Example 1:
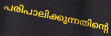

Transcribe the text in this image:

പരിപാലിക്കുന്നതിന്റെ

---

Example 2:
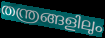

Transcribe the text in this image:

തന്ത്രങ്ങളിലും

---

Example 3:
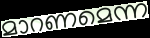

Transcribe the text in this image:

മാറണമെന്ന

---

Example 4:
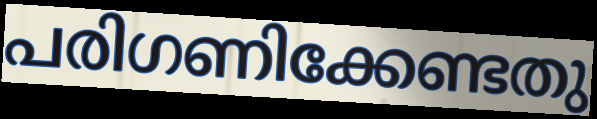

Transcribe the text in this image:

പരിഗണിക്കേണ്ടതു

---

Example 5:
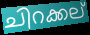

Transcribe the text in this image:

ചിറക്കല്